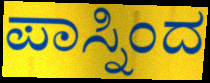
ಪಾಸ್ನಿಂದ